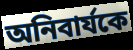
অনিবার্যকে